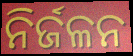
ନିର୍ଜଳନ